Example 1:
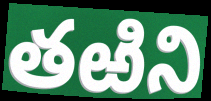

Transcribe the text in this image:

తఱిని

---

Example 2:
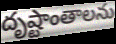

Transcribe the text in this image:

దృష్టాంతాలను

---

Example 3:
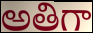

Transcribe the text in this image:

అతిగా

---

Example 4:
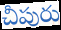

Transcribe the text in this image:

చీపురు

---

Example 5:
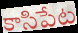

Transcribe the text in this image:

కాసిపేట